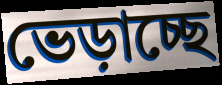
ভেড়াচ্ছে